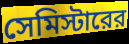
সেমিস্টারের